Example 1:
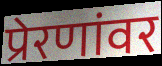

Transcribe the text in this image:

प्रेरणांवर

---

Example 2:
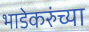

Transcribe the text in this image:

भाडेकरुंच्या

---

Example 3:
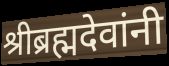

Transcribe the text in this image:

श्रीब्रह्मदेवांनी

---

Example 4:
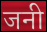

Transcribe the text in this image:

जनी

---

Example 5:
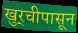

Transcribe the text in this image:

खुर्चीपासून